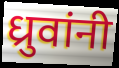
ध्रुवांनी